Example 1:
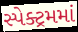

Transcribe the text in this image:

સ્પેક્ટ્રમમાં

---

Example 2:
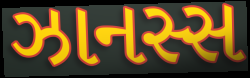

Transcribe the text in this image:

ઝાનસ્સ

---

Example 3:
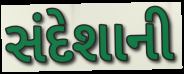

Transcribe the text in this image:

સંદેશાની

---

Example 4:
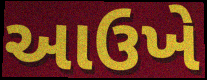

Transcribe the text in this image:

આઉખે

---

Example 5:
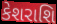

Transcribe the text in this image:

કેશરાશિ